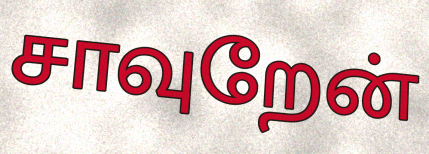
சாவுறேன்